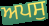
ਅਪਸੁ